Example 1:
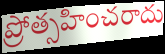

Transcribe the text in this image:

ప్రోత్సహించరాదు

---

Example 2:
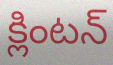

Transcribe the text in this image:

క్లింటన్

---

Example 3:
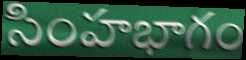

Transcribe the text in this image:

సింహభాగం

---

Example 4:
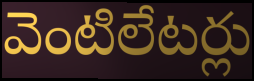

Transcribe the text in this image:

వెంటిలేటర్లు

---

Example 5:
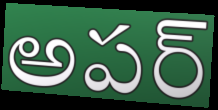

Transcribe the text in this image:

అపర్